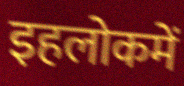
इहलोकमें